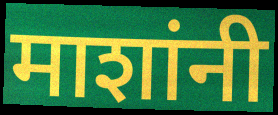
माशांनी